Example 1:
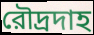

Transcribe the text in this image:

রৌদ্রদাহ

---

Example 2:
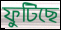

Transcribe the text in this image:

ফুটিছে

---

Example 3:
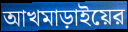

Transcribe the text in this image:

আখমাড়াইয়ের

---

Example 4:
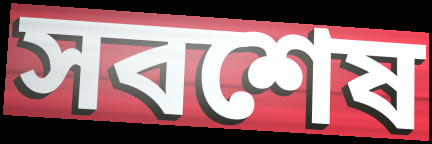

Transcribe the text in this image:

সবশেষ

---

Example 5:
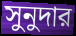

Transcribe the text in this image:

সুনুদার